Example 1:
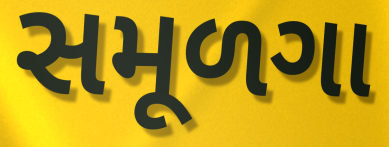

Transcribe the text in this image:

સમૂળગા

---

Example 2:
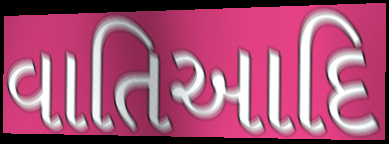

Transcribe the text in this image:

વાતિઆદિ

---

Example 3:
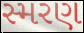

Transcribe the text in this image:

સ્‍મરણ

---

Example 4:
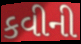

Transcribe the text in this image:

કવીની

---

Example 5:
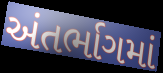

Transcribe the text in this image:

અંતર્ભાગમાં